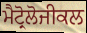
ਮੈਟ੍ਰੋਲੋਜੀਕਲ